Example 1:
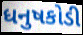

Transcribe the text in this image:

ધનુષકોડી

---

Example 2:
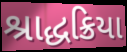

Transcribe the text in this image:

શ્રાદ્ધક્રિયા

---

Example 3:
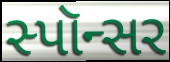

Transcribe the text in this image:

સ્પૉન્સર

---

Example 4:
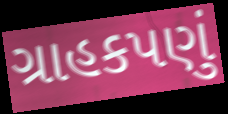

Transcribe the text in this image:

ગ્રાહકપણું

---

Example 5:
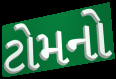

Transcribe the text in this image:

ટોમનો